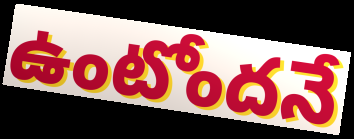
ఉంటోందనే